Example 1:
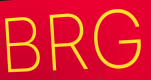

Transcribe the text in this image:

BRG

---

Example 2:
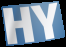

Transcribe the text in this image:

HY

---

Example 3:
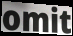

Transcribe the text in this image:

omit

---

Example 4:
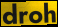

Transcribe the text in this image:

droh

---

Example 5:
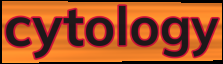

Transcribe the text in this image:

cytology